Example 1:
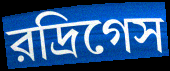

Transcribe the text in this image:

রদ্রিগেস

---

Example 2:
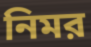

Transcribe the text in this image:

নিমর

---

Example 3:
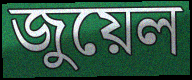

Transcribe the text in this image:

জুয়েল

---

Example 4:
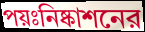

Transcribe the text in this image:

পয়ঃনিষ্কাশনের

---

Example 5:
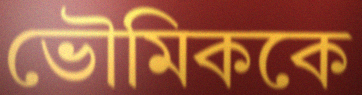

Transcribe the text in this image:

ভৌমিককে